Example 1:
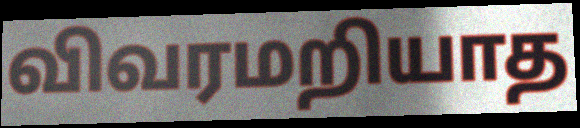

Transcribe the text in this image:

விவரமறியாத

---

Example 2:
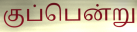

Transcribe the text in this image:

குப்பென்று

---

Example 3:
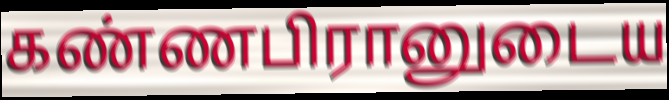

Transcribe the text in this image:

கண்ணபிரானுடைய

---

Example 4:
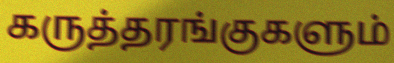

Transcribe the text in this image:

கருத்தரங்குகளும்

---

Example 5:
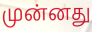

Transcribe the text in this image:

முன்னது